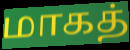
மாகத்